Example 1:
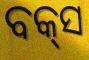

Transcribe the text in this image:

ବକ୍‍ସ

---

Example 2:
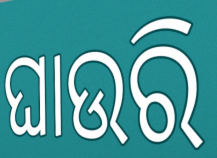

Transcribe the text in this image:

ଘାଉରି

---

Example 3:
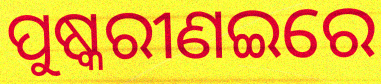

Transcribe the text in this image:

ପୁଷ୍କରୀଣଇରେ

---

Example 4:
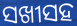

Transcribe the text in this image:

ସଖୀସହ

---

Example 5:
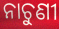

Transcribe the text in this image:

ନାଚୁଣୀ